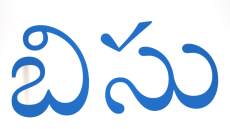
బిసు